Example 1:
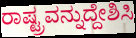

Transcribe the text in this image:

ರಾಷ್ಟ್ರವನ್ನುದ್ದೇಶಿಸಿ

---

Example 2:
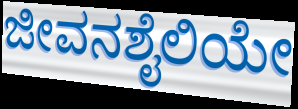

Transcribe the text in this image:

ಜೀವನಶೈಲಿಯೇ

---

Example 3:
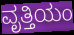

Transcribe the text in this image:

ವೃತ್ತಿಯಂ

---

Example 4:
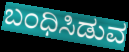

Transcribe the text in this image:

ಬಂಧಿಸಿಡುವ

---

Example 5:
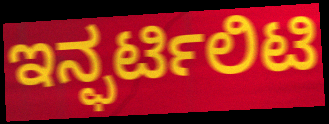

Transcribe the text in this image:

ಇನ್ಫರ್ಟಿಲಿಟಿ